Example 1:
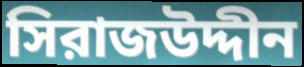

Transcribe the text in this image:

সিরাজউদ্দীন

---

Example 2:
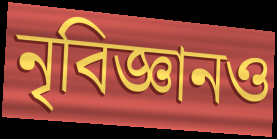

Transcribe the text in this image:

নৃবিজ্ঞানও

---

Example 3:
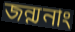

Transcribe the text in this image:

জন্মনাং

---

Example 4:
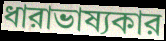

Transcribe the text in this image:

ধারাভাষ্যকার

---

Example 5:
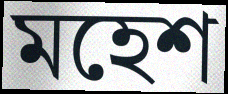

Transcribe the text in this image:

মহেশ